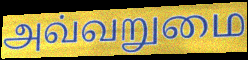
அவ்வறுமை